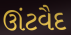
ઊંટવૈદ